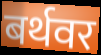
बर्थवर